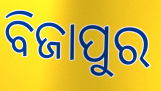
ବିଜାପୁର